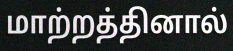
மாற்றத்தினால்